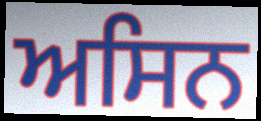
ਅਸਿਨ